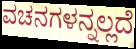
ವಚನಗಳನ್ನಲ್ಲದೆ